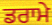
ਡਰਾਮੇ